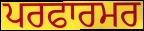
ਪਰਫਾਰਮਰ